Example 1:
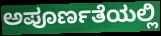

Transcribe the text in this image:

ಅಪೂರ್ಣತೆಯಲ್ಲಿ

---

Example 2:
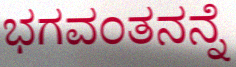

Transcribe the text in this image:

ಭಗವಂತನನ್ನೆ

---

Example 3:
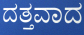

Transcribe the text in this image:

ದತ್ತವಾದ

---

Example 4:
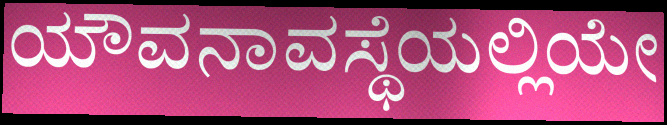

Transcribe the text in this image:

ಯೌವನಾವಸ್ಥೆಯಲ್ಲಿಯೇ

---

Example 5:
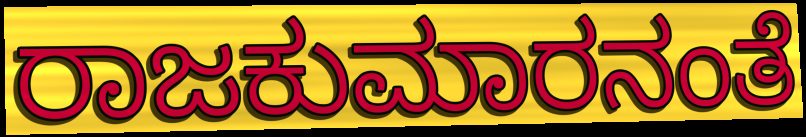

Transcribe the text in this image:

ರಾಜಕುಮಾರನಂತೆ